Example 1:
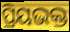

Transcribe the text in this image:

ପ୍ରିୟଭକ୍ତ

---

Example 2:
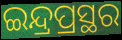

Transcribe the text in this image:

ଇନ୍ଦ୍ରପ୍ରସ୍ଥର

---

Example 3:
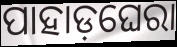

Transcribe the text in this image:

ପାହାଡ଼ଘେରା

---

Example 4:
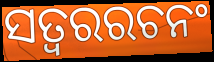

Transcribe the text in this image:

ସତ୍ୱରରଚନଂ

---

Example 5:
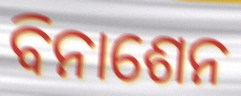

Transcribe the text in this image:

ବିନାଶେନ